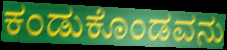
ಕಂಡುಕೊಂಡವನು